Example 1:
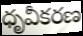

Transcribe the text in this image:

ధృవీకరణ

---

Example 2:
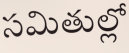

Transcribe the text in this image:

సమితుల్లో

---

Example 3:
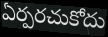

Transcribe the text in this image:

ఏర్పరచుకోదు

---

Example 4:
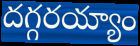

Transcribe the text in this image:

దగ్గరయ్యాం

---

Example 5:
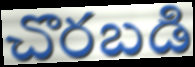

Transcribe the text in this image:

చొరబడి